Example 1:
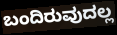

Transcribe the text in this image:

ಬಂದಿರುವುದಲ್ಲ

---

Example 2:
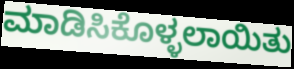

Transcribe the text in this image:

ಮಾಡಿಸಿಕೊಳ್ಳಲಾಯಿತು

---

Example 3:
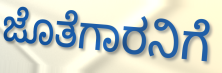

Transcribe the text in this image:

ಜೊತೆಗಾರನಿಗೆ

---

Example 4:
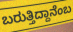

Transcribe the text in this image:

ಬರುತ್ತಿದ್ದಾನೆಂಬ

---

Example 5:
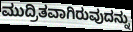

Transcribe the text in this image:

ಮುದ್ರಿತವಾಗಿರುವುದನ್ನು